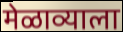
मेळाव्याला